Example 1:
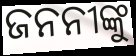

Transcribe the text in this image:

ଜନନୀଙ୍କୁ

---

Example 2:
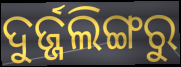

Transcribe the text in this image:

ଦୁର୍ଜ୍ଜଲିଙ୍ଗରୁ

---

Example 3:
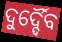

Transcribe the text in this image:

ଦୁର୍ଦ୍ଦୈବ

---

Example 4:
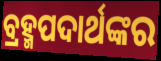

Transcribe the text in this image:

ବ୍ରହ୍ମପଦାର୍ଥଙ୍କର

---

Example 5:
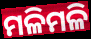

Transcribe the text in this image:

ମଳିମଳି